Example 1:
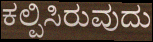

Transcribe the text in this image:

ಕಲ್ಪಿಸಿರುವುದು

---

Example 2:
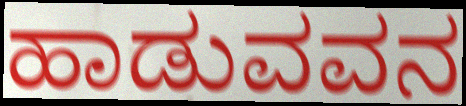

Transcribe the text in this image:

ಹಾಡುವವನ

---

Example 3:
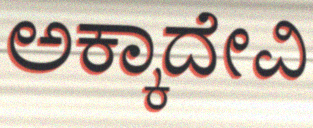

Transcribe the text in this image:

ಅಕ್ಕಾದೇವಿ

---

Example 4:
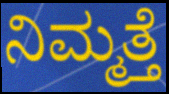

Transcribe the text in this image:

ನಿಮ್ಮತ್ತೆ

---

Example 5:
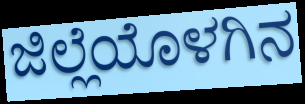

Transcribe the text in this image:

ಜಿಲ್ಲೆಯೊಳಗಿನ